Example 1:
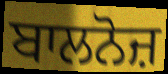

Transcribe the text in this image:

ਬਾਲਨੋਜ਼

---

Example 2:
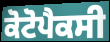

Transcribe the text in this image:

ਕੋਟੋਪੈਕਸੀ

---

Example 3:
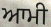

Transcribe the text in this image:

ਆਮੀ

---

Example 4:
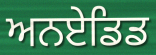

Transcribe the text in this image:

ਅਨਏਡਿਡ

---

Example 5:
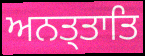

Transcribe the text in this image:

ਅਨਤ੍ਤਾਤਿ